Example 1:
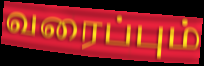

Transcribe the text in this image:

வரைப்பும்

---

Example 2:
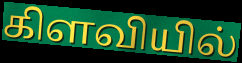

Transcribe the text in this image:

கிளவியில்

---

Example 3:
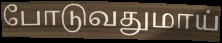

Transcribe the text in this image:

போடுவதுமாய்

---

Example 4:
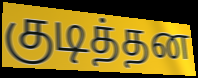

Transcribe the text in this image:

குடித்தன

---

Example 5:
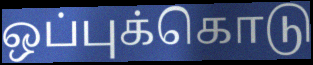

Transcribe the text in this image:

ஒப்புக்கொடு